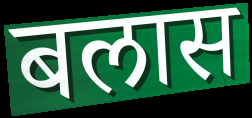
बलास